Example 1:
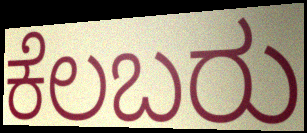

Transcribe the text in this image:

ಕೆಲಬರು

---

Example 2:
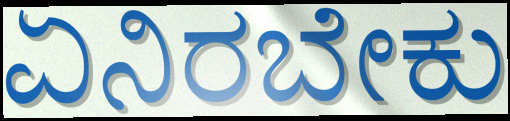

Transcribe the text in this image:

ಏನಿರಬೇಕು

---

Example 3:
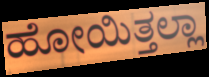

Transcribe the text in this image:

ಹೋಯಿತ್ತಲ್ಲಾ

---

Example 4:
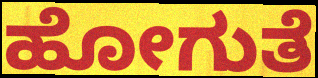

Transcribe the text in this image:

ಹೋಗುತೆ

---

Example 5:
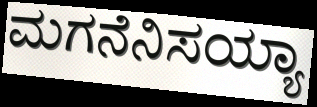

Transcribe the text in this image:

ಮಗನೆನಿಸಯ್ಯಾ